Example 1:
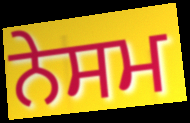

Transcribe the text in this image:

ਨੇਸਮ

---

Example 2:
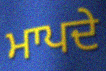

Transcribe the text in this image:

ਮਾਪਦੇ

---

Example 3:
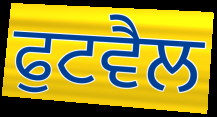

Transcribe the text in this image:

ਫੁਟਵੈਲ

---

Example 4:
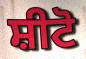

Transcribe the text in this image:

ਸ਼ੀਟੋ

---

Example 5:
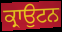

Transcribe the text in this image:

ਕ੍ਰਾਉਟਨ